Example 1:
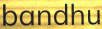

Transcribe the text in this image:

bandhu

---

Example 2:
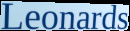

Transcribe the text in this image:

Leonards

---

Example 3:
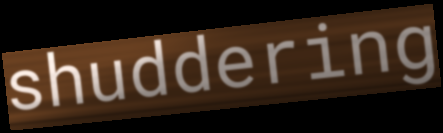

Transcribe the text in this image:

shuddering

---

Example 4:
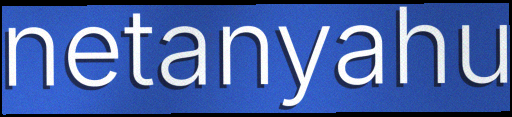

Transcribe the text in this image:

netanyahu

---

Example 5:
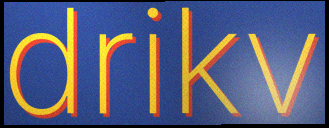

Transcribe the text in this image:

drikv